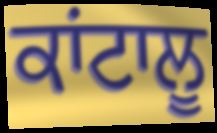
ਕਾਂਟਾਲੂ